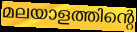
മലയാളത്തിന്റെ